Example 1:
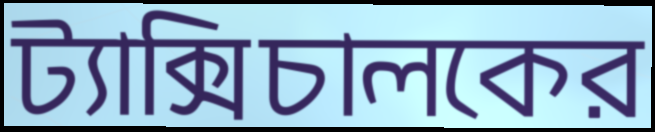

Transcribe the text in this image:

ট্যাক্সিচালকের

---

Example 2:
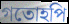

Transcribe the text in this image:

গতোহপি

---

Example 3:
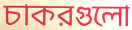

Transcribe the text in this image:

চাকরগুলো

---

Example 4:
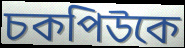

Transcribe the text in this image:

চকপিউকে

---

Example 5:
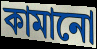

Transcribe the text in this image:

কামানো